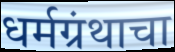
धर्मग्रंथाचा